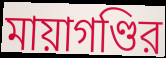
মায়াগণ্ডির